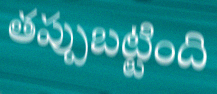
తప్పుబట్టింది